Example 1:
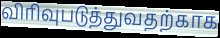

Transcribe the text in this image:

விரிவுபடுத்துவதற்காக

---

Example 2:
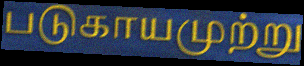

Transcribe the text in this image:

படுகாயமுற்று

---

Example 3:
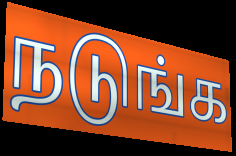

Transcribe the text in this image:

நடுங்க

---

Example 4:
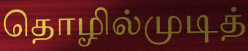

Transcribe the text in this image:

தொழில்முடித்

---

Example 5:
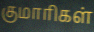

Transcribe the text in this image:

குமாரிகள்